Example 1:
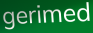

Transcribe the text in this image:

gerimed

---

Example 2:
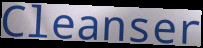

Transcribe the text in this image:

Cleanser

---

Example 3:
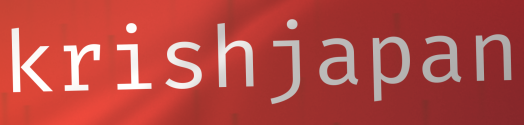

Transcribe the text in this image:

krishjapan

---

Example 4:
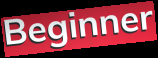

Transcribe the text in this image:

Beginner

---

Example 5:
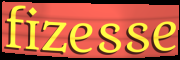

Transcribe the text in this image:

fizesse